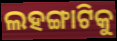
ଲହଙ୍ଗାଟିକୁ